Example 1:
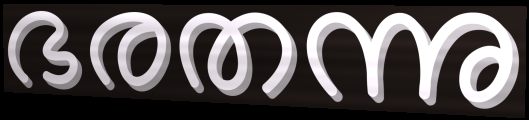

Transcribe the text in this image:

ഭരതന്നു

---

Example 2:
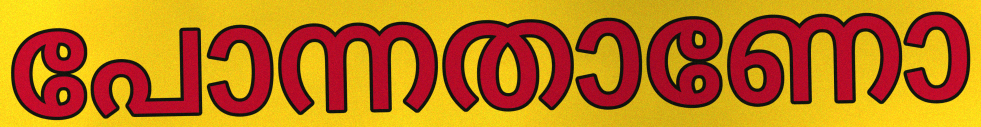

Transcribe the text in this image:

പോന്നതാണോ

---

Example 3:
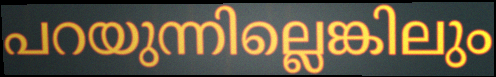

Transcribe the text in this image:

പറയുന്നില്ലെങ്കിലും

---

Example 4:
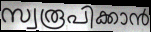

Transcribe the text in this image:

സ്വരൂപിക്കാൻ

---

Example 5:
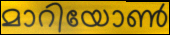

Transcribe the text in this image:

മാറിയോൺ